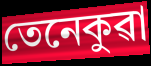
তেনেকুৱা